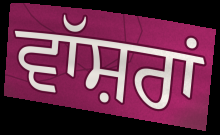
ਵਾੱਸ਼ਰਾਂ